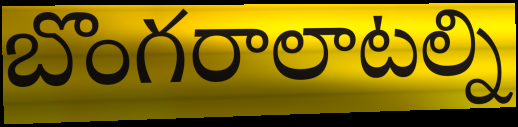
బొంగరాలాటల్ని